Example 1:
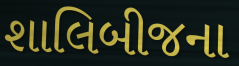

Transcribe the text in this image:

શાલિબીજના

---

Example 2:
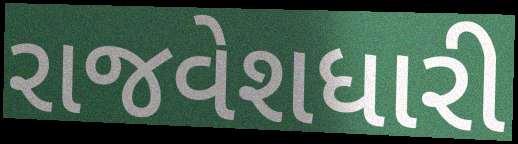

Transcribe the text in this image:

રાજવેશધારી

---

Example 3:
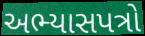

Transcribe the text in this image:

અભ્યાસપત્રો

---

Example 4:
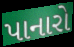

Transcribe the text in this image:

પાનારો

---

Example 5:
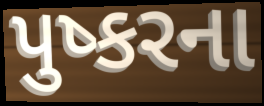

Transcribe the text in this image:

પુષ્કરના